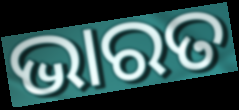
ଭାରତ